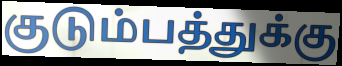
குடும்பத்துக்கு